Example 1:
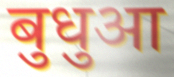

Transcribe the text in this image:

बुधुआ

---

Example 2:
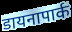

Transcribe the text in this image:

डायनापार्क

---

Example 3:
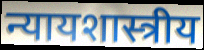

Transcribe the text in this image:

न्यायशास्त्रीय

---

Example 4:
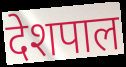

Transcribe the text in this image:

देशपाल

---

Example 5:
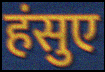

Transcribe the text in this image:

हंसुए